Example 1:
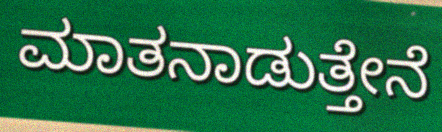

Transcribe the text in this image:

ಮಾತನಾಡುತ್ತೇನೆ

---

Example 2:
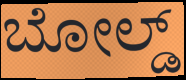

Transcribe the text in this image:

ಬೋಲ್ಡ್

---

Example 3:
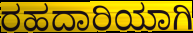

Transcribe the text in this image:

ರಹದಾರಿಯಾಗಿ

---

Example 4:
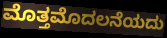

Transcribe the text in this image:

ಮೊತ್ತಮೊದಲನೆಯದು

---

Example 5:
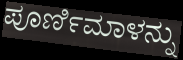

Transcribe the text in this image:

ಪೂರ್ಣಿಮಾಳನ್ನು